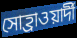
সোহ্রাওয়ার্দী